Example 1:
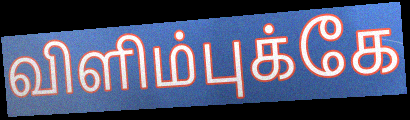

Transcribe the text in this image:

விளிம்புக்கே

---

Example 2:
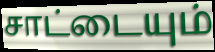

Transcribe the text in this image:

சாட்டையும்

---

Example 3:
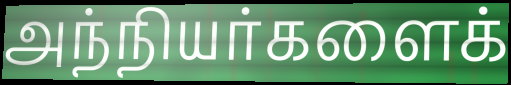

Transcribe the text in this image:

அந்நியர்களைக்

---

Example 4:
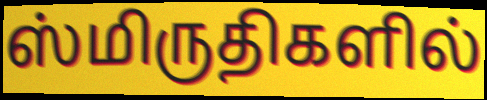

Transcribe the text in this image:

ஸ்மிருதிகளில்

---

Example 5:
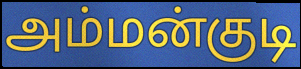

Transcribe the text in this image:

அம்மன்குடி